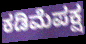
ಕಡಿಮೆಪಕ್ಷ